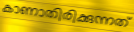
കാണാതിരിക്കുന്നത്